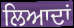
ਲਿਆਦਾਂ